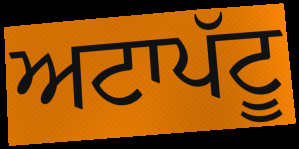
ਅਟਾਪੱਟੂ